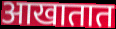
आखातात